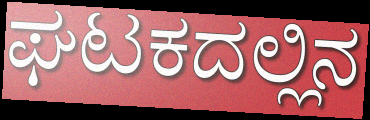
ಘಟಕದಲ್ಲಿನ